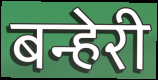
बन्हेरी